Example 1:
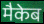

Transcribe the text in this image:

मैकेब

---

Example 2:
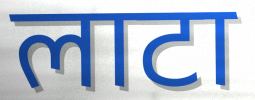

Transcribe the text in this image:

लाटा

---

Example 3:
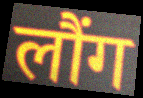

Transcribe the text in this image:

लौंग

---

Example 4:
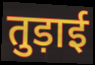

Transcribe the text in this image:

तुड़ाई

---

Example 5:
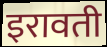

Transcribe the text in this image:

इरावती